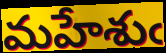
మహేశుఁ